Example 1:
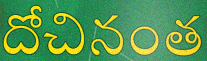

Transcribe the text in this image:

దోచినంత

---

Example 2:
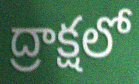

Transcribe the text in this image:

ద్రాక్షలో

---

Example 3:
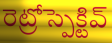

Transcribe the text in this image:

రెట్రోస్పెక్టివ్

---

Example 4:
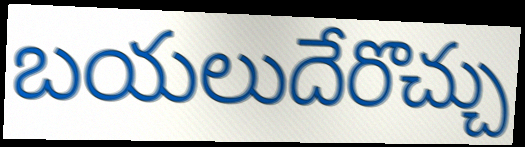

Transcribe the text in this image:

బయలుదేరొచ్చు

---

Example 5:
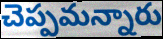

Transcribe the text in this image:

చెప్పమన్నారు